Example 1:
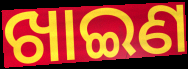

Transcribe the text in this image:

ଖାଇଣ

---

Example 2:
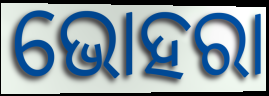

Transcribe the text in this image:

ଭୋହରା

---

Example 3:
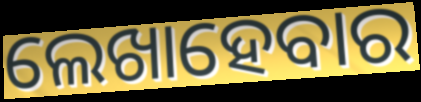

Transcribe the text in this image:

ଲେଖାହେବାର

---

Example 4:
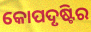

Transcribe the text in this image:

କୋପଦୃଷ୍ଟିର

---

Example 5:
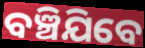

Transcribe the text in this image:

ବଞ୍ଚିଯିବେ